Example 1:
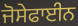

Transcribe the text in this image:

ਜੋਸੇਫਾਈਨ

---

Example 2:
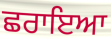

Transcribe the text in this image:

ਛਰਾਇਆ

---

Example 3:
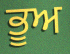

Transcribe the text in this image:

ਭੂਅ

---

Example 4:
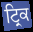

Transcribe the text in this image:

ਟ੍ਰਿਕ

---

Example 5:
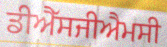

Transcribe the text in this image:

ਡੀਐੱਸਜੀਐਮਸੀ